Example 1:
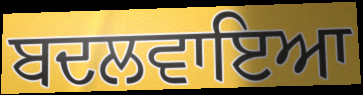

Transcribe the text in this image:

ਬਦਲਵਾਇਆ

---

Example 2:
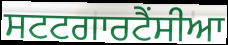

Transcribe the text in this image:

ਸਟਟਗਾਰਟੈਂਸੀਆ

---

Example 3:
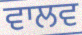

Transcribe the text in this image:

ਵਾਲਵ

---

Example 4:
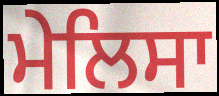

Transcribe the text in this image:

ਮੇਲਿਸਾ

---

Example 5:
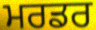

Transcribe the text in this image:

ਮਰਡਰ